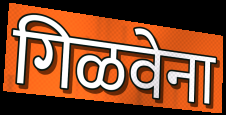
गिळवेना